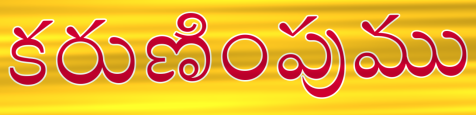
కరుణింపుము